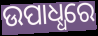
ଉପାଧ୍ଧରେ